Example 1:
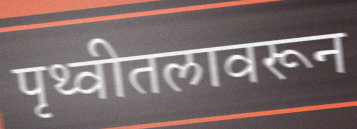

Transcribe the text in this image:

पृथ्वीतलावरून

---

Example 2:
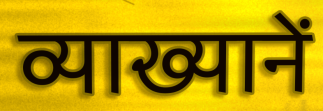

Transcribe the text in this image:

व्याख्यानें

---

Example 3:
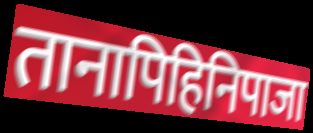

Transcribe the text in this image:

तानापिहिनिपाजा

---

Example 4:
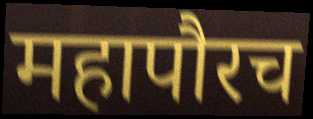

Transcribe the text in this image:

महापौरच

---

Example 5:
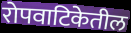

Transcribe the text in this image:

रोपवाटिकेतील